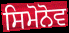
ਸਿਮੋਨੋਵ